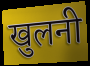
खुलनी